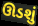
ઊડશું